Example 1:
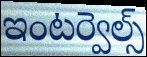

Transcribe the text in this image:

ఇంటర్వెల్స్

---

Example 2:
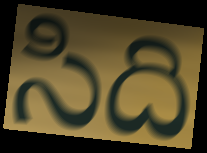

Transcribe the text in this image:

సిది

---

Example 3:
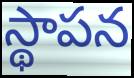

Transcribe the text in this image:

స్థాపన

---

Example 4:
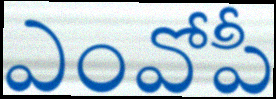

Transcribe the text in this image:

ఎంవోపీ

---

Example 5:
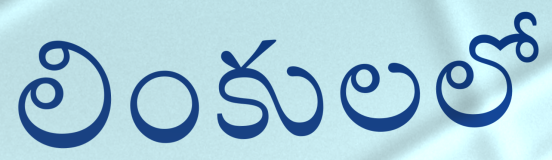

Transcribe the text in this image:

లింకులలో